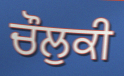
ਚੌਲੁਕੀ